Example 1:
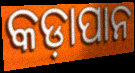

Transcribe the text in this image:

କଡ଼ାପାନ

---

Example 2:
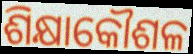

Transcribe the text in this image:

ଶିକ୍ଷାକୌଶଳ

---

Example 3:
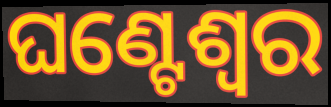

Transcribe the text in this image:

ଘଣ୍ଟେଶ୍ୱର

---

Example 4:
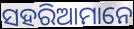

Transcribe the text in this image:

ସହରିଆମାନେ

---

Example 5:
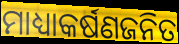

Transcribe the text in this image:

ମାଧ୍ୟାକର୍ଷଣଜନିତ